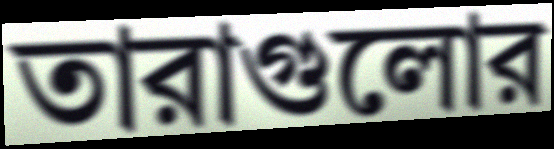
তারাগুলোর